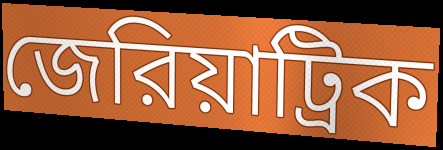
জেরিয়াট্রিক